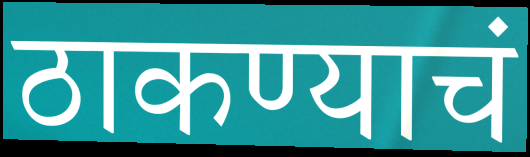
ठाकण्याचं